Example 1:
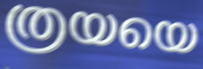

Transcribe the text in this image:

ത്രയയെ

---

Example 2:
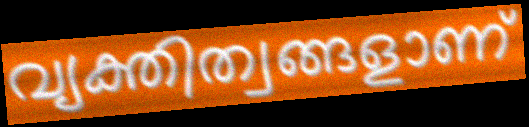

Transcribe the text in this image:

വ്യക്തിത്വങ്ങളാണ്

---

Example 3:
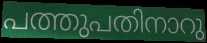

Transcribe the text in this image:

പത്തുപതിനാറു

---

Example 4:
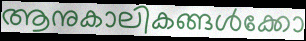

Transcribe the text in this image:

ആനുകാലികങ്ങൾക്കോ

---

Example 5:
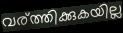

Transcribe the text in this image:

വര്ത്തിക്കുകയില്ല